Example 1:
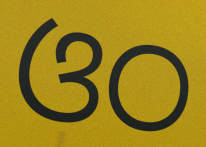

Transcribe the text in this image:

ଓଠ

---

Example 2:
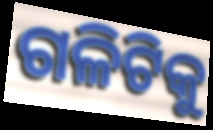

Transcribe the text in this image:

ଗଳିଟିକୁ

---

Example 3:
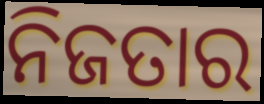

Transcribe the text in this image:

ନିଜତାର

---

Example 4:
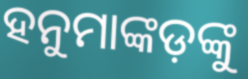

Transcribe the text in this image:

ହନୁମାଙ୍କଡ଼ଙ୍କୁ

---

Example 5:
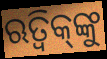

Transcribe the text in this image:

ଋତ୍ୱିକ୍‌ଙ୍କୁ